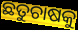
ଛତୁଚାଷକୁ